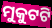
ମୁକୁଟଟି